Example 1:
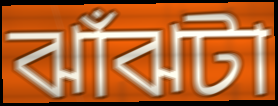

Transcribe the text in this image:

ঝাঁঝটা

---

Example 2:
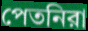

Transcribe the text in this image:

পেতনিরা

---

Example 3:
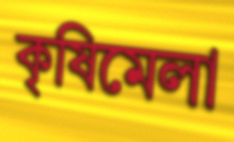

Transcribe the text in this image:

কৃষিমেলা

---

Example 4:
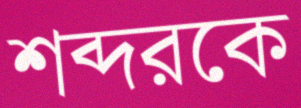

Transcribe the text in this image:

শব্দরকে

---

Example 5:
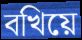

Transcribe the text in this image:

বখিয়ে